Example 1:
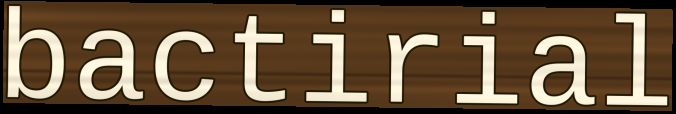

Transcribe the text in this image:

bactirial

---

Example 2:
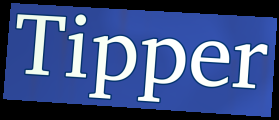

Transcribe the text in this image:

Tipper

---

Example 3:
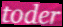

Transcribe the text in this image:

toder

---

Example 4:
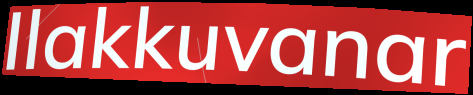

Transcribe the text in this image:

Ilakkuvanar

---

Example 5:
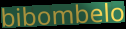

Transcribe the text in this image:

bibombelo